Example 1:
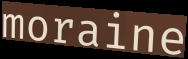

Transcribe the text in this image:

moraine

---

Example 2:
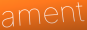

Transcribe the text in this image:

ament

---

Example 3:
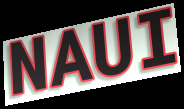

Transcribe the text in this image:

NAUI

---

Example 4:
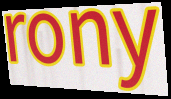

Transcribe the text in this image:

rony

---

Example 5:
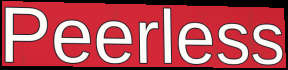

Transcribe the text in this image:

Peerless